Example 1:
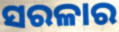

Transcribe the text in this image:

ସରଳାର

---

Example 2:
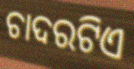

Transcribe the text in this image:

ଚାଦରଟିଏ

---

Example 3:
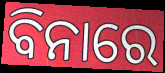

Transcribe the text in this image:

ବିନାରେ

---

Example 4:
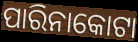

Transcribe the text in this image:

ପାରିନାକୋଟା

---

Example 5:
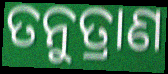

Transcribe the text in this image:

ତନୁତ୍ରାଣ